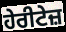
ਹੇਰੀਟੇਜ਼